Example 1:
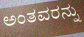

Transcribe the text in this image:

ಅಂತವರನ್ನು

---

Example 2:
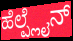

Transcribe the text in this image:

ಹೆಲ್ಪ್ಲೈನ್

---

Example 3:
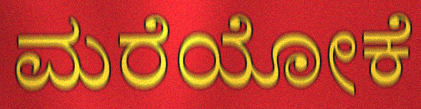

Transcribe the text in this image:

ಮರೆಯೋಕೆ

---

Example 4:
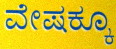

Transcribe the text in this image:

ವೇಷಕ್ಕೂ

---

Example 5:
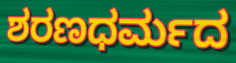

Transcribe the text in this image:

ಶರಣಧರ್ಮದ